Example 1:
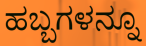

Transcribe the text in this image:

ಹಬ್ಬಗಳನ್ನೂ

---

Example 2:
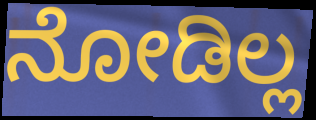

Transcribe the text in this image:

ನೋಡಿಲ್ಲ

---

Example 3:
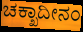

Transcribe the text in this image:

ಚಕ್ಖಾದೀನಂ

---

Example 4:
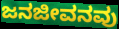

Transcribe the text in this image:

ಜನಜೀವನವು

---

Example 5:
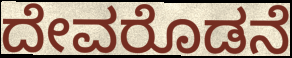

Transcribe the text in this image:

ದೇವರೊಡನೆ